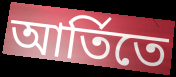
আর্তিতে